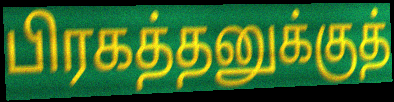
பிரகத்தனுக்குத்